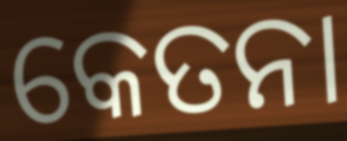
କେତନା